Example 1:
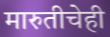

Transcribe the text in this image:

मारुतीचेही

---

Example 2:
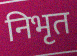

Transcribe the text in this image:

निभृत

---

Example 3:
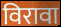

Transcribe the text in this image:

विरावा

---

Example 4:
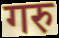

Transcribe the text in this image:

गरु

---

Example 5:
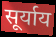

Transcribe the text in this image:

सूर्याय